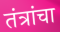
तंत्रांचा